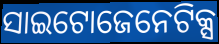
ସାଇଟୋଜେନେଟିକ୍ସ